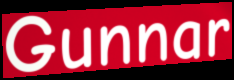
Gunnar